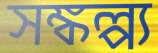
সঙ্কল্প্য